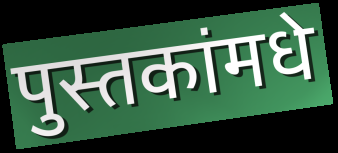
पुस्तकांमधे